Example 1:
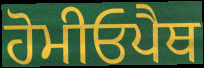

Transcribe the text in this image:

ਹੋਮੀਓਪੈਥ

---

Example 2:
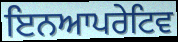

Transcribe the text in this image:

ਇਨਆਪਰੇਟਿਵ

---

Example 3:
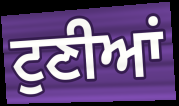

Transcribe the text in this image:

ਟੁਣੀਆਂ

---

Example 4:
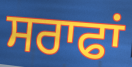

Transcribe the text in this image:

ਸਰਾਫਾਂ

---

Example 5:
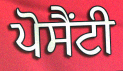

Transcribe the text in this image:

ਪੋਸੈਂਟੀ